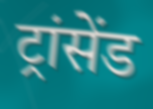
ट्रांसेंड